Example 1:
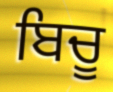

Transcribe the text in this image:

ਬਿਚੂ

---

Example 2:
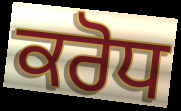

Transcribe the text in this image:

ਕਰੋਧ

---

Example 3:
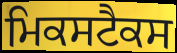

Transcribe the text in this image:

ਮਿਕਸਟੈਕਸ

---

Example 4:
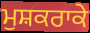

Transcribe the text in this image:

ਮੁਸ਼ਕਰਾਕੇ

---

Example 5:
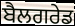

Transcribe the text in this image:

ਬੈਲਗਰੇਡ